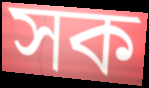
সক